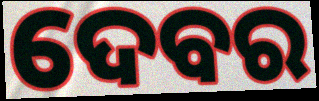
ଦେବର